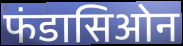
फंडासिओन